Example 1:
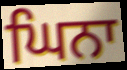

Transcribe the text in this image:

ਘਿਨਾ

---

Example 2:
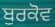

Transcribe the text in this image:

ਬੁਰਕੋਵ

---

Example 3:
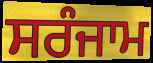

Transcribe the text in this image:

ਸਰੰਜਾਮ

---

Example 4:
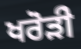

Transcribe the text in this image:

ਖਰੋੜੀ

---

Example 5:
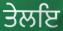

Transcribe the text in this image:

ਤੇਲਇ